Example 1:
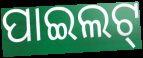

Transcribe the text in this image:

ପାଇଲଟ୍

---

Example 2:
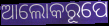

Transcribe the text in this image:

ଆଲୋକରୂପେ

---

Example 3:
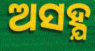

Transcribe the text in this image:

ଅସହ୍ଯ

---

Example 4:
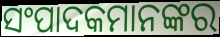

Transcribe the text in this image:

ସଂପାଦକମାନଙ୍କର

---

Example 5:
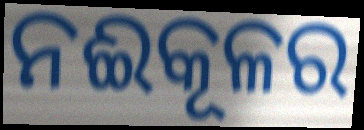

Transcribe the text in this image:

ନଈକୂଳର